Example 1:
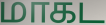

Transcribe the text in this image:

மாகட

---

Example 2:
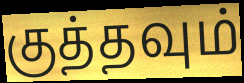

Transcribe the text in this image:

குத்தவும்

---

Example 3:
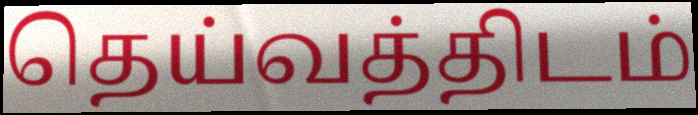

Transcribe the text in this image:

தெய்வத்திடம்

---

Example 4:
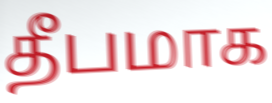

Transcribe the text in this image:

தீபமாக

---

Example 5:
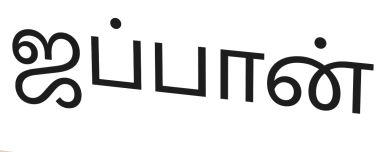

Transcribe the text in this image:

ஜப்பான்